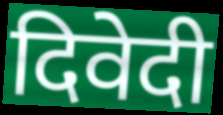
दिवेदी